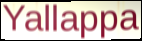
Yallappa